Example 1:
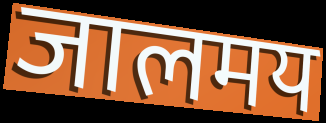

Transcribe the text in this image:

जालमय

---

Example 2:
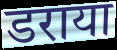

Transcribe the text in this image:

डराया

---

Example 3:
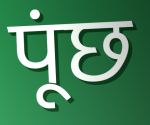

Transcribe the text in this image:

पूंछ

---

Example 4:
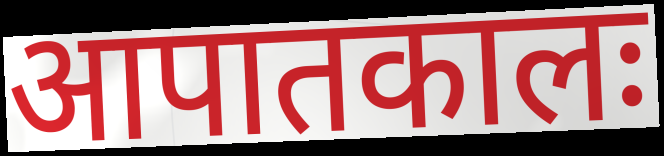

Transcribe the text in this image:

आपातकालः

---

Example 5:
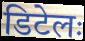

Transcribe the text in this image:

डिटेलः